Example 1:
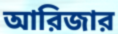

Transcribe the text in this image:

আরিজার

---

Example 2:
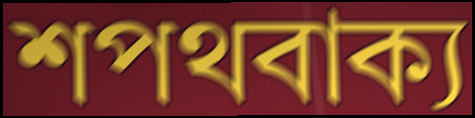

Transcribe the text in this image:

শপথবাক্য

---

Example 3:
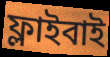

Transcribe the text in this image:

ফ্লাইবাই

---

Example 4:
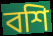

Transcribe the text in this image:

বশি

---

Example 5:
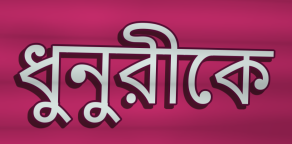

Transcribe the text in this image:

ধুনুরীকে